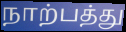
நாற்பத்து